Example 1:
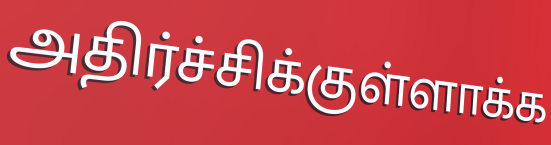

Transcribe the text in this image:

அதிர்ச்சிக்குள்ளாக்க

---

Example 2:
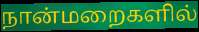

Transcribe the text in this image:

நான்மறைகளில்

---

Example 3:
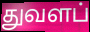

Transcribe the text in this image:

துவளப்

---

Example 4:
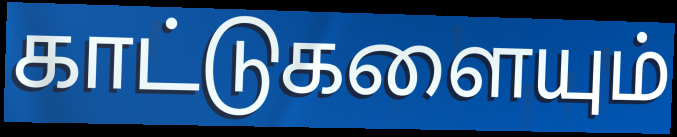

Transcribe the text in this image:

காட்டுகளையும்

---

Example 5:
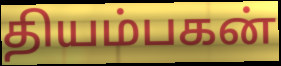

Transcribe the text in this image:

தியம்பகன்